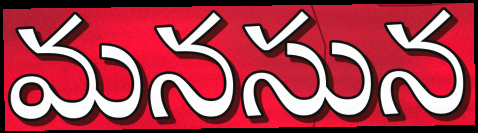
మనసున